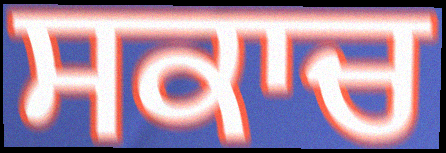
ਸਕਾਚ